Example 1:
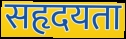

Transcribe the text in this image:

सहृदयता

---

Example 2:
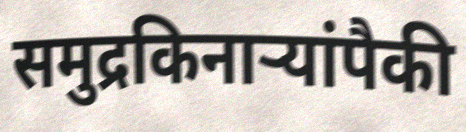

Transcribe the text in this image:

समुद्रकिनाऱ्यांपैकी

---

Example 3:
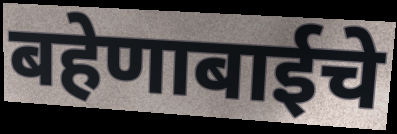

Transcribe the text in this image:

बहेणाबाईचे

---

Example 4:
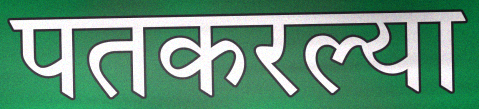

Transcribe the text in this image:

पतकरल्या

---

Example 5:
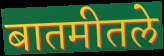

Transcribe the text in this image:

बातमीतले